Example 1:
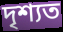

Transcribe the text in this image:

দৃশ্যত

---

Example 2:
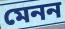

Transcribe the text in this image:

মেনন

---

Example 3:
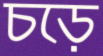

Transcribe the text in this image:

চড়ে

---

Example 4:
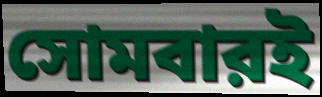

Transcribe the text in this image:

সোমবারই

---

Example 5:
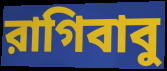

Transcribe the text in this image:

রাগিবাবু